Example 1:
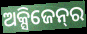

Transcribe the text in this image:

ଅକ୍ସିଜେନ୍‌ର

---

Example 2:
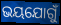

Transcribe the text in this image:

ଭୟଯୋଗୁଁ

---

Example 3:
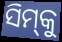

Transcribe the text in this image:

ସିମ୍‌କୁ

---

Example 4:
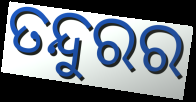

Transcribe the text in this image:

ତନ୍ଦୁରର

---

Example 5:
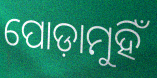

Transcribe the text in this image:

ପୋଡ଼ାମୁହିଁ